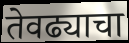
तेवढ्याचा